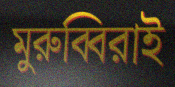
মুরুব্বিরাই